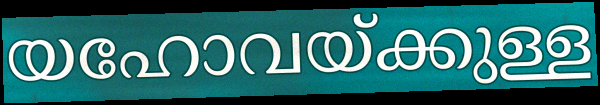
യഹോവയ്ക്കുള്ള